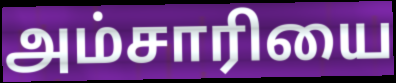
அம்சாரியை